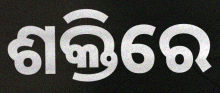
ଶକ୍ତିରେ